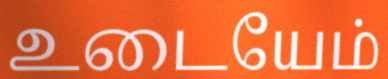
உடையேம்